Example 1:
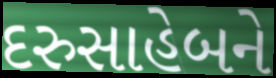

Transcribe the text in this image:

દરુસાહેબને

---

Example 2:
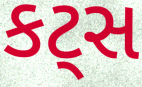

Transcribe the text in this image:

કટ્સ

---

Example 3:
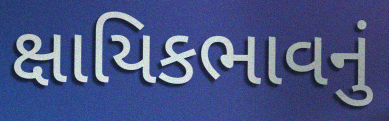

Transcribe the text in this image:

ક્ષાયિકભાવનું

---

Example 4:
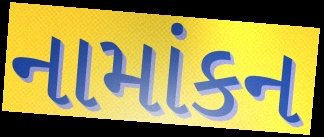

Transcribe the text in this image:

નામાંકન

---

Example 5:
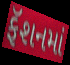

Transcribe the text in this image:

ફૅશનમાં